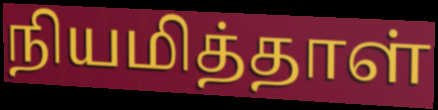
நியமித்தாள்